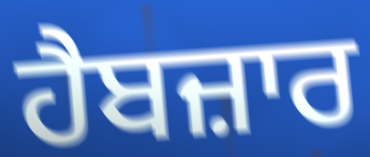
ਹੈਬਜ਼ਾਰ